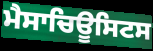
ਮੈਸਾਚਿਊਸਿਟਸ